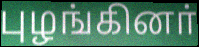
புழங்கினர்